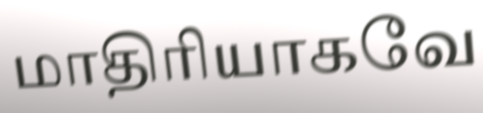
மாதிரியாகவே